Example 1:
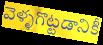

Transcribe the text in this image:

వెళ్ళగొట్టడానికీ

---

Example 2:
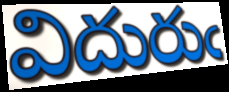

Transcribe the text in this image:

విదురుఁ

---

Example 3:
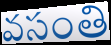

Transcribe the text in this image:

వసంతి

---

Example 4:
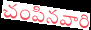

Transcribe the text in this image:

చంపినవారి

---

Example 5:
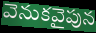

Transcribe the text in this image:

వెనుకవైపున